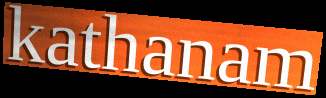
kathanam